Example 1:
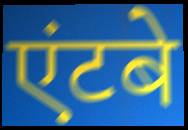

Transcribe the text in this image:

एंटबे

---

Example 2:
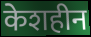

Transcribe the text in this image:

केशहीन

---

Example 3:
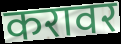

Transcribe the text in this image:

करावर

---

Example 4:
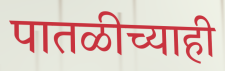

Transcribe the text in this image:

पातळीच्याही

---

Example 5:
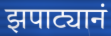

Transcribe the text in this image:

झपाट्यानं